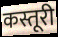
कस्तूरी